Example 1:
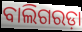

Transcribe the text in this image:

ବାଲିଗରଡ଼ା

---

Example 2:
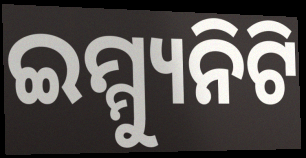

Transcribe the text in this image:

ଇମ୍ମ୍ୟୁନିଟି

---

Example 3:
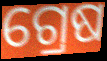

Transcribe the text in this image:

ଗ୍ରେଷ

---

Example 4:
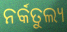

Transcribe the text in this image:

ନର୍କତୁଲ୍ୟ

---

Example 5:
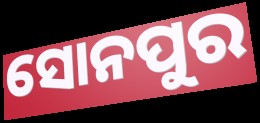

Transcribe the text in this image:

ସୋନପୁର